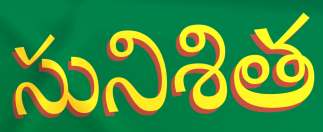
సునిశిత